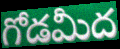
గోడమీద